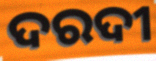
ଦରଦୀ